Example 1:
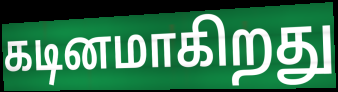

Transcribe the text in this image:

கடினமாகிறது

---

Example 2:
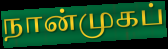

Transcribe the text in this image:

நான்முகப்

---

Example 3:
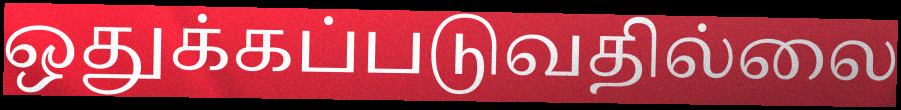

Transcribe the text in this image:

ஒதுக்கப்படுவதில்லை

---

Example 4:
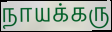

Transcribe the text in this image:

நாயக்கரு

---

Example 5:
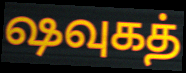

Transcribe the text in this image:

ஷவுகத்